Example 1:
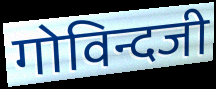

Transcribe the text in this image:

गोविन्दजी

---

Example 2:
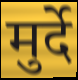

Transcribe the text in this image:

मुर्दे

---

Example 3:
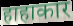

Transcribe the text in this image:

हाहाकार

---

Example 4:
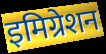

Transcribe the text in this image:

इमिग्रेशन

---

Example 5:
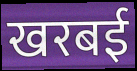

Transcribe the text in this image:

खरबई